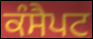
ਕੰਸੈਪਟ